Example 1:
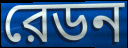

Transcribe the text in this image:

রেডন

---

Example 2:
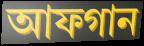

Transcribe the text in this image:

আফগান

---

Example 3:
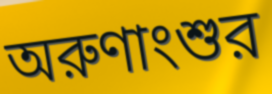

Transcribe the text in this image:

অরুণাংশুর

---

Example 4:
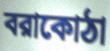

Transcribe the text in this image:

বরাকোঠা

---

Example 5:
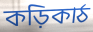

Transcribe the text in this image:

কড়িকাঠ